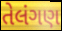
તેલંગણ